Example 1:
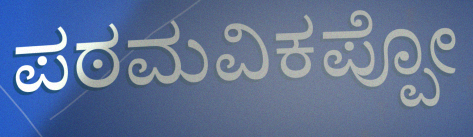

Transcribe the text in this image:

ಪಠಮವಿಕಪ್ಪೋ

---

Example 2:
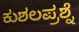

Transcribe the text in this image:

ಕುಶಲಪ್ರಶ್ನೆ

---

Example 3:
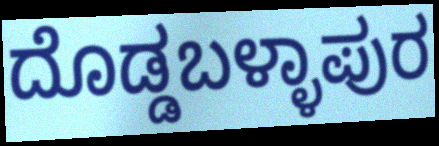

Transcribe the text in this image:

ದೊಡ್ಡಬಳ್ಳಾಪುರ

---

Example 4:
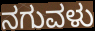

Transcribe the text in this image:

ನಗುವಳು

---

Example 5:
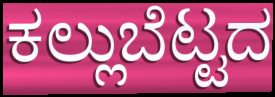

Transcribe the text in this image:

ಕಲ್ಲುಬೆಟ್ಟದ